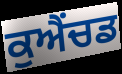
ਕੁਐਂਚਡ